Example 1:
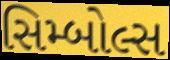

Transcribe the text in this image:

સિમ્બોલ્સ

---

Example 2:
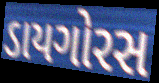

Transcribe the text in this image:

ડાયગોરસ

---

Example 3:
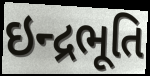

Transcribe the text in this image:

ઇન્દ્રભૂતિ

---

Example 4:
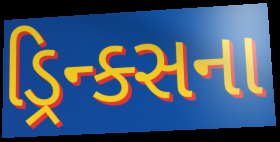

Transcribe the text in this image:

ડ્રિન્ક્સના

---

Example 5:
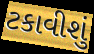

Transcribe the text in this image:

ટકાવીશું